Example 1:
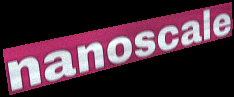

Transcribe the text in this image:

nanoscale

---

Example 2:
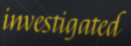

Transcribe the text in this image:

investigated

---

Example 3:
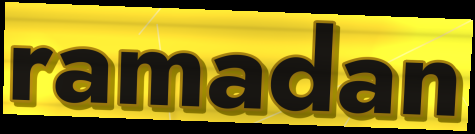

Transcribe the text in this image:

ramadan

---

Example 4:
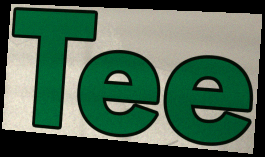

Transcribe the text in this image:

Tee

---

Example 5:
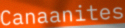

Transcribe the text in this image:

Canaanites